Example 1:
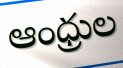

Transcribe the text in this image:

ఆంధ్రుల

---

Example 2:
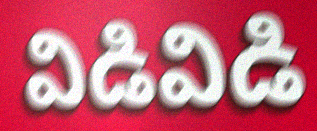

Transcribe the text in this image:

విడివిడి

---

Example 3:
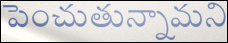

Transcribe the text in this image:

పెంచుతున్నామని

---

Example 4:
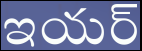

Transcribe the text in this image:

ఇయర్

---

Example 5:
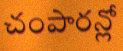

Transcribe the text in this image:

చంపారన్లో